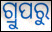
ଗ୍ରୁପରୁ